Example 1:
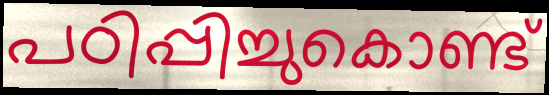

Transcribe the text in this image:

പഠിപ്പിച്ചുകൊണ്ട്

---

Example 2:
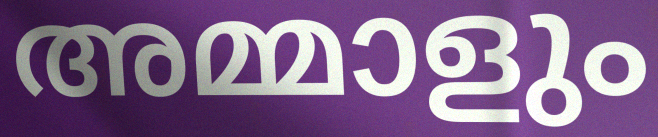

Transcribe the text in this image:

അമ്മാളും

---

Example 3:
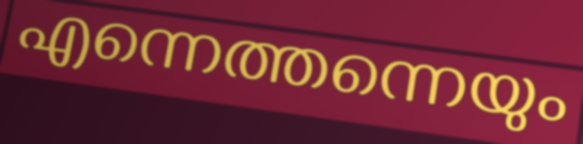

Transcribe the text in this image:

എന്നെത്തന്നെയും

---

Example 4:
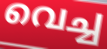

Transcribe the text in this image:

വെച്ച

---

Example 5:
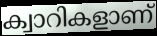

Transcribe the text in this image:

ക്വാറികളാണ്